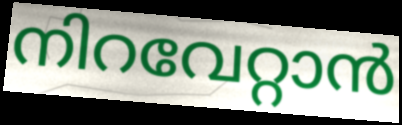
നിറവേറ്റാൻ